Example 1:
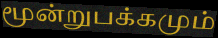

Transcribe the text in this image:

மூன்றுபக்கமும்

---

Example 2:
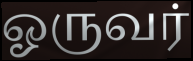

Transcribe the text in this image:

ஓருவர்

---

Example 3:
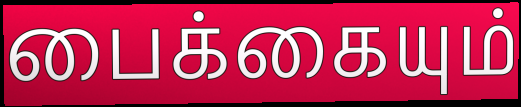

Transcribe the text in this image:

பைக்கையும்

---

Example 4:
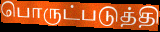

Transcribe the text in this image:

பொருட்படுத்தி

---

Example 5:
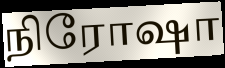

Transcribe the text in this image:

நிரோஷா